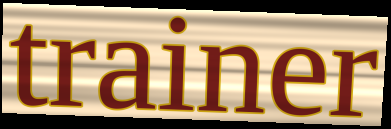
trainer